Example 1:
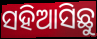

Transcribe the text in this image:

ସହିଆସିଛୁ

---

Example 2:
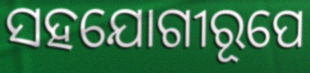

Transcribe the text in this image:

ସହଯୋଗୀରୂପେ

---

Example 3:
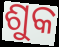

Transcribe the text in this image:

ଶୁକ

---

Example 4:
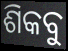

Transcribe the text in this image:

ଶିକବୁ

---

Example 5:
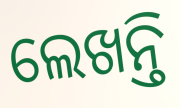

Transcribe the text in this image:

ଲେଖନ୍ତି